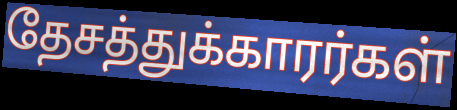
தேசத்துக்காரர்கள்